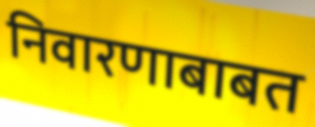
निवारणाबाबत